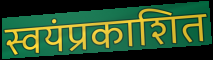
स्वयंप्रकाशित